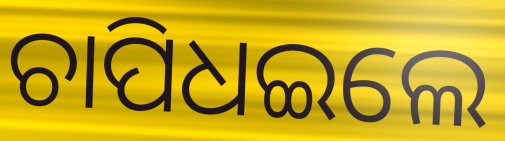
ଚାପିଧଇଲେ